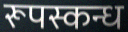
रूपस्कन्ध